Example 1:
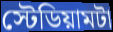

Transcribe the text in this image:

স্টেডিয়ামটা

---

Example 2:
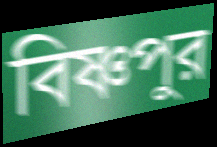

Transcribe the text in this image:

বিষ্ণপুর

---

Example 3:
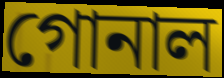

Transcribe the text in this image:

গোনাল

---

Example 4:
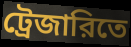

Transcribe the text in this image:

ট্রেজারিতে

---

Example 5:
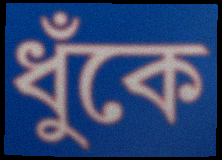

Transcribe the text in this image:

ধুঁকে